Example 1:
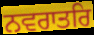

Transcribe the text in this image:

ਨਵਰਾਤਰਿ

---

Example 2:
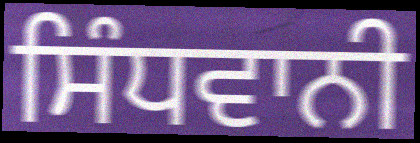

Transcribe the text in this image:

ਸਿੰਧਵਾਨੀ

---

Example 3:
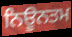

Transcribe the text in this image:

ਨਿਊਨਤਮ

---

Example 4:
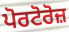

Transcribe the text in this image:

ਪੋਰਟੋਰੋਜ਼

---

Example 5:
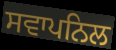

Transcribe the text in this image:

ਸਵਾਪਨਿਲ